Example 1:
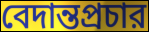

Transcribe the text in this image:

বেদান্তপ্রচার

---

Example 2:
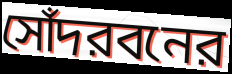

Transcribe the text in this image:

সোঁদরবনের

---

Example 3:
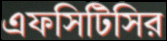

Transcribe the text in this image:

এফসিটিসির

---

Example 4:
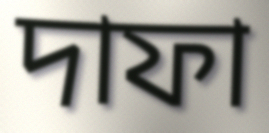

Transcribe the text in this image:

দাফা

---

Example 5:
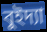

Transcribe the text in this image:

বুইদ্যা